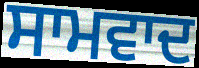
ਸਾਮਵਾਦ